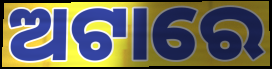
ଅଟାରେ